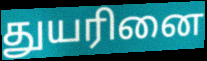
துயரினை